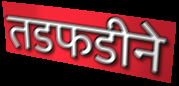
तडफडीने